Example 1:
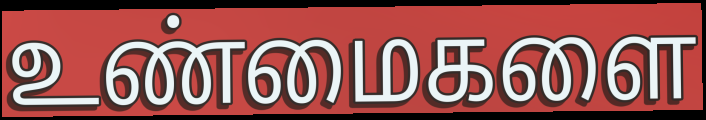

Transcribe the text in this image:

உண்மைகளை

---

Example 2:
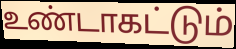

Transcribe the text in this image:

உண்டாகட்டும்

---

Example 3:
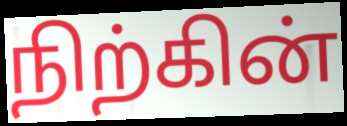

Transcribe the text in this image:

நிற்கின்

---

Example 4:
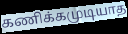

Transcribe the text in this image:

கணிக்கமுடியாத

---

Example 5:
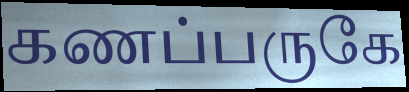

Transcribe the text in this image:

கணப்பருகே